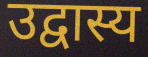
उद्वास्य